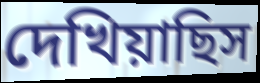
দেখিয়াছিস